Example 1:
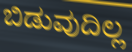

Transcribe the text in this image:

ಬಿಡುವುದಿಲ್ಲ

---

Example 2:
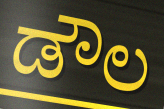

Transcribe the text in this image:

ಡೌಲ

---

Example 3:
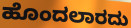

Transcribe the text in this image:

ಹೊಂದಲಾರದು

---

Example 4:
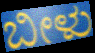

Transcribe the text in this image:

ಬೀಳು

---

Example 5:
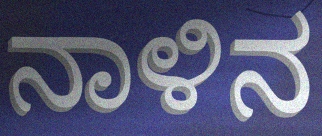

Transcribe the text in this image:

ನಾಳಿನ